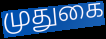
முதுகை